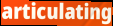
articulating